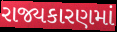
રાજ્યકારણમાં